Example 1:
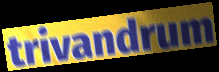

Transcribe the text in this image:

trivandrum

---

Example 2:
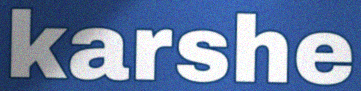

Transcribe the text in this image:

karshe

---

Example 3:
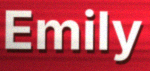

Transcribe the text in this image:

Emily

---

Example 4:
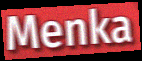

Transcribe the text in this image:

Menka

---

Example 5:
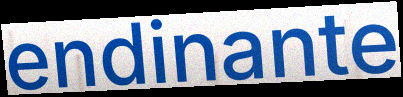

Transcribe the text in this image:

endinante